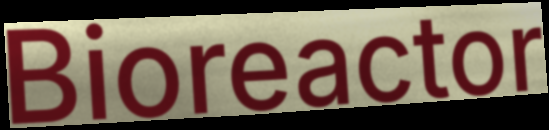
Bioreactor